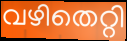
വഴിതെറ്റി